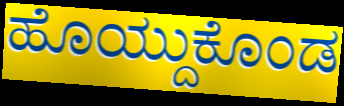
ಹೊಯ್ದುಕೊಂಡ